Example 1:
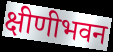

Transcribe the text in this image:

क्षीणीभवन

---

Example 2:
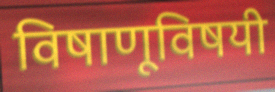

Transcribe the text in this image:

विषाणूविषयी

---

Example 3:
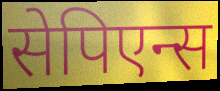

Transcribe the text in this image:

सेपिएन्स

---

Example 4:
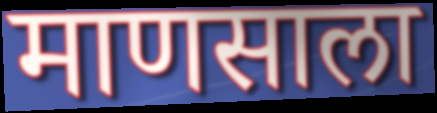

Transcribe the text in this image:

माणसाला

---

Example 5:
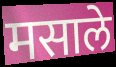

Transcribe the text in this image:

मसाले